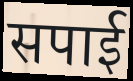
सपाई